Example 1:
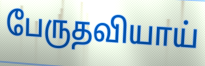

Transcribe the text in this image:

பேருதவியாய்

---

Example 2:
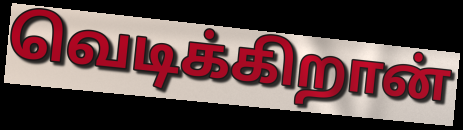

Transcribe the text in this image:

வெடிக்கிறான்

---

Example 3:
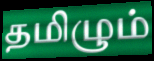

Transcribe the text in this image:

தமிழும்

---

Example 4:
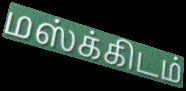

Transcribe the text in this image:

மஸ்க்கிடம்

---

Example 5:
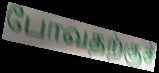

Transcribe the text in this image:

போவதற்குச்